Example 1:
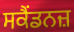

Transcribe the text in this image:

ਸਕੈਂਡਨਜ਼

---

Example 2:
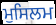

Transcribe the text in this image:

ਮੁਸਿਲਮ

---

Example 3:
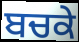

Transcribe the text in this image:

ਬਚਕੇ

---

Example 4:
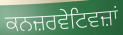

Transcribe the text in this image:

ਕਨਜ਼ਰਵੇਟਿਵਜ਼ਾਂ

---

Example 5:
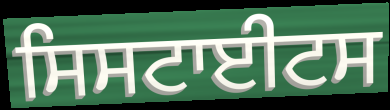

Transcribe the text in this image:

ਸਿਸਟਾਈਟਸ